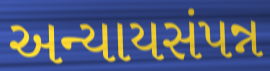
અન્યાયસંપન્ન